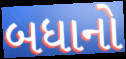
બધાનો